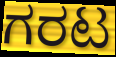
ಗರಟ